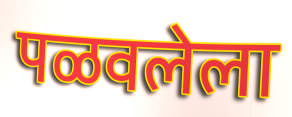
पळवलेला